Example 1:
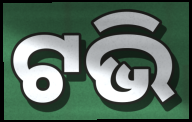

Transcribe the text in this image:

ଟଭି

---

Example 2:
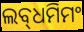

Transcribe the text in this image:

ଲବ୍‌ଧମିମଂ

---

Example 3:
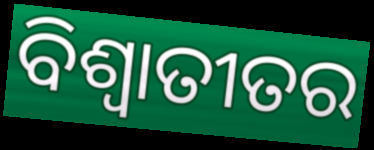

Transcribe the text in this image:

ବିଶ୍ଵାତୀତର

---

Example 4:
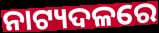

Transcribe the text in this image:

ନାଟ୍ୟଦଳରେ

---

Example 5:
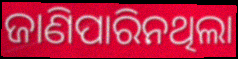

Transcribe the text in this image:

ଜାଣିପାରିନଥିଲା